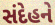
સંદેહને